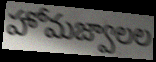
హోమజ్వాలల